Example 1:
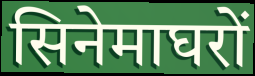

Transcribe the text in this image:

सिनेमाघरों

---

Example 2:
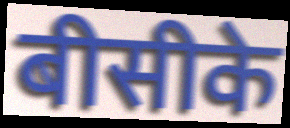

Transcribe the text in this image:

बीसीके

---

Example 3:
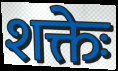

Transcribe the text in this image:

शक्तेः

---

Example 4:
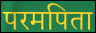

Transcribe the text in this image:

परमपिता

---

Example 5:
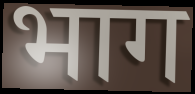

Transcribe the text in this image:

भाग